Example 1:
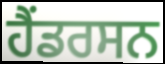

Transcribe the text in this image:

ਹੈਂਡਰਸਨ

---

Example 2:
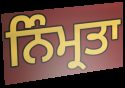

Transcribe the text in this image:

ਨਿੰਮ੍ਰਤਾ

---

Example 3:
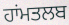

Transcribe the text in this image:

ਹਾਂਮਤਲਬ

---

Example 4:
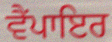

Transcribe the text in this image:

ਵੈਂਪਾਇਰ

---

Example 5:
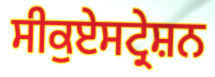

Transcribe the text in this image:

ਸੀਕੁਏਸਟ੍ਰੇਸ਼ਨ